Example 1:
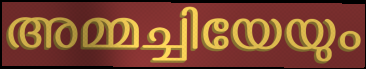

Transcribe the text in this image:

അമ്മച്ചിയേയും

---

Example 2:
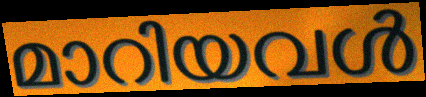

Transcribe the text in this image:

മാറിയവൾ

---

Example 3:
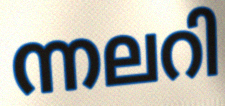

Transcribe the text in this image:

ന്നലറി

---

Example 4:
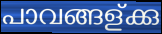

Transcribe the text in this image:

പാവങ്ങള്ക്കു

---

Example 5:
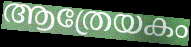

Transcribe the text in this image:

ആത്രേയകം